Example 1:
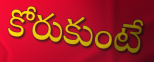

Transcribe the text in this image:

కోరుకుంటే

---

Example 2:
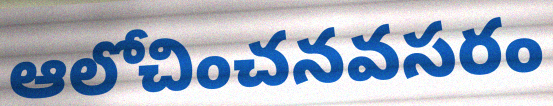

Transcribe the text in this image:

ఆలోచించనవసరం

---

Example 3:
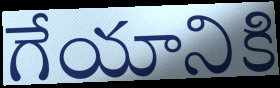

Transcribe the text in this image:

గేయానికి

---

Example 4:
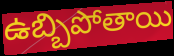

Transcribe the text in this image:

ఉబ్బిపోతాయి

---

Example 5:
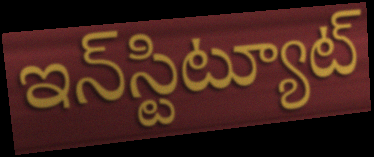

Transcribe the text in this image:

ఇన్‌స్టిట్యూట్